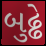
બુઢ્ઢે